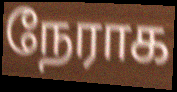
நேராக